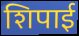
शिपाई